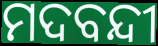
ମଦବନ୍ଦୀ